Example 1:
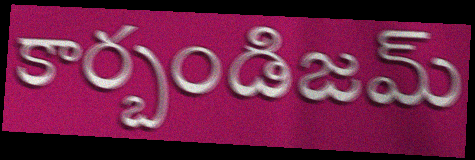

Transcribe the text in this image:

కార్బండిజమ్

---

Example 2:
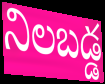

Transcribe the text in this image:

నిలబడ్డ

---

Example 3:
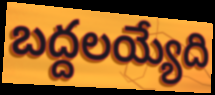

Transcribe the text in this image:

బద్దలయ్యేది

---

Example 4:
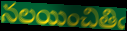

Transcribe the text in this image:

నలయించితిఁ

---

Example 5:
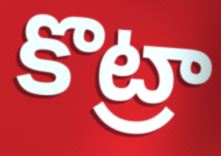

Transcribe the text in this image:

కొట్రా